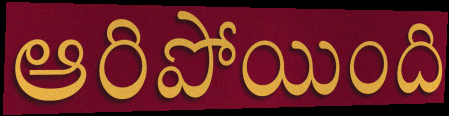
ఆరిపోయింది